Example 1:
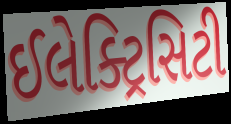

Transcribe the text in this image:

ઈલેક્ટ્રિસિટી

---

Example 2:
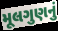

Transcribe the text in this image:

મૂલગુણનું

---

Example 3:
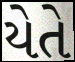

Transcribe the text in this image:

યેતે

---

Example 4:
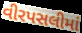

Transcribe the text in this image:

વીરપસલીમાં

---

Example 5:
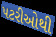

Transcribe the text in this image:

પટરીઓથી